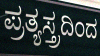
ಪ್ರತ್ಯಸ್ತ್ರದಿಂದ